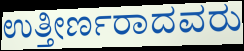
ಉತ್ತೀರ್ಣರಾದವರು